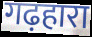
गढ़हारा